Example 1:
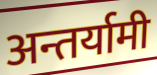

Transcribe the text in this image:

अन्तर्यामी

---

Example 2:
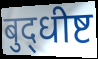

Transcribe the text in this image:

बुद्धीष्ट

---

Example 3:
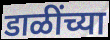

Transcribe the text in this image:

डाळींच्या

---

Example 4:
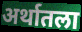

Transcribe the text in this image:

अर्थातला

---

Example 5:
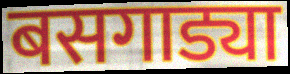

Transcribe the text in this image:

बसगाड्या